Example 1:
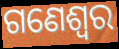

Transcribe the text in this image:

ଗଣେଶ୍ୱର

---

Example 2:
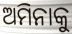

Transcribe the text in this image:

ଅମିନାକୁ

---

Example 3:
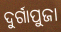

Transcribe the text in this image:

ଦୁର୍ଗାପୁଜା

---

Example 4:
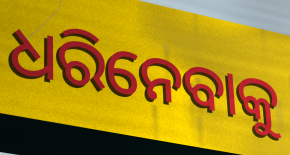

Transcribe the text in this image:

ଧରିନେବାକୁ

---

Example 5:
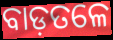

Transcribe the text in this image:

ବାଡ଼ତଳେ